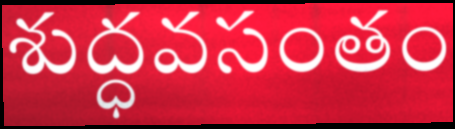
శుద్ధవసంతం